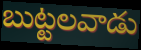
బుట్టలవాడు